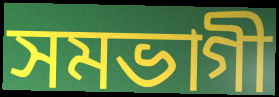
সমভাগী